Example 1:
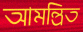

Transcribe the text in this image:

আমন্ত্রিত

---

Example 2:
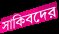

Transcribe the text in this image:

সাকিবদের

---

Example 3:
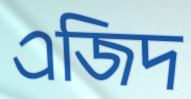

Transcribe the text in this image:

এজিদ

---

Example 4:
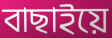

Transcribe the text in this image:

বাছাইয়ে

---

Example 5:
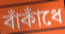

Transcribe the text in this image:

বাঁকাঁধে